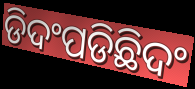
ଡିଦଂପଡିଛିଦଂ